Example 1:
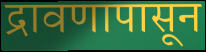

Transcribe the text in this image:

द्रावणापासून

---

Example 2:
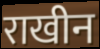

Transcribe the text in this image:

राखीन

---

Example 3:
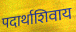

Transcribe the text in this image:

पदार्थाशिवाय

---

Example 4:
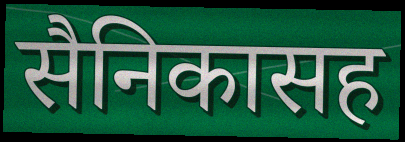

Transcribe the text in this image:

सैनिकासह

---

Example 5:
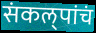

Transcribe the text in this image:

संकल्पांचं